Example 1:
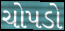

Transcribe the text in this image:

ચોપડો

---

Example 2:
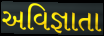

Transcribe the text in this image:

અવિજ્ઞાતા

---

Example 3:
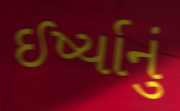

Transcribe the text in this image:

ઈર્ષ્યાનું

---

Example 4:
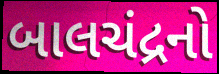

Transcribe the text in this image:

બાલચંદ્રનો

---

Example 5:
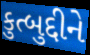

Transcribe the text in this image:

કુત્બુદ્દીને